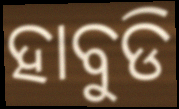
ହାବୁଡି